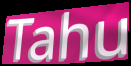
Tahu